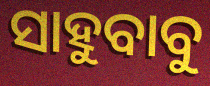
ସାହୁବାବୁ